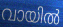
വായിൽ